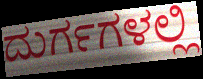
ದುರ್ಗಗಳಲ್ಲಿ